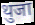
थुजा